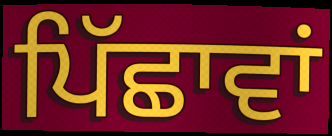
ਪਿੱਛਾਵਾਂ